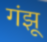
गंझू